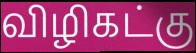
விழிகட்கு